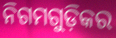
ନିଗମଗୁଡ଼ିକର